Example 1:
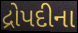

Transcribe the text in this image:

દ્રોપદીના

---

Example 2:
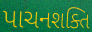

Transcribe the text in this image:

પાચનશક્તિ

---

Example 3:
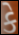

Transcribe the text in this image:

કે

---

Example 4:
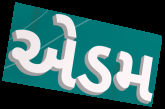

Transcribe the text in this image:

એડમ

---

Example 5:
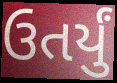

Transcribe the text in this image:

ઉતર્યું